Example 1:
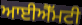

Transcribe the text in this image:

ਆਈਐੱਮਟੀ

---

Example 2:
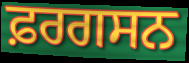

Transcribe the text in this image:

ਫ਼ਰਗਸਨ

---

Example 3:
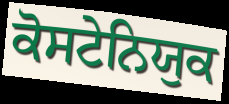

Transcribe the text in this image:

ਕੋਸਟੇਨਿਯੁਕ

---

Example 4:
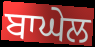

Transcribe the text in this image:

ਬਾਘੇਲ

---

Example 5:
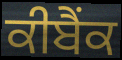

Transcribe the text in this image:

ਕੀਬੈਂਕ